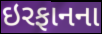
ઇરફાનના